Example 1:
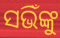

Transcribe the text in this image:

ସଭିଁଙ୍କୁ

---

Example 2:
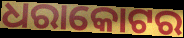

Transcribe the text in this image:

ଧରାକୋଟର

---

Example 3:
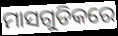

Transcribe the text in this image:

ମାସଗୁଡିକରେ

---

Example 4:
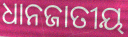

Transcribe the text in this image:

ଧାନଜାତୀୟ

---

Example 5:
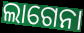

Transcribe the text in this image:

ଲାଗେନା